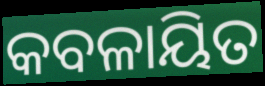
କବଳାୟିତ